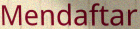
Mendaftar